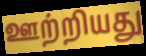
ஊற்றியது